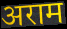
अराम